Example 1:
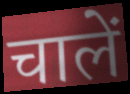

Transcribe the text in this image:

चालें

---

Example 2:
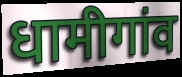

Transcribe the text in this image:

धामीगांव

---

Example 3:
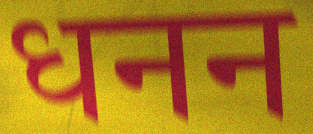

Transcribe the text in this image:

धनन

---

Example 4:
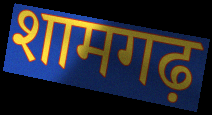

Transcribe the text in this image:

शामगढ़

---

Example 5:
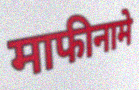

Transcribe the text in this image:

माफीनामे